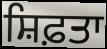
ਸ਼ਿਫ਼ਤਾ